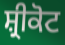
ਸ਼੍ਰੀਕੋਟ